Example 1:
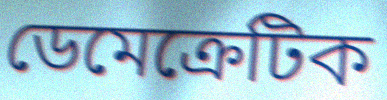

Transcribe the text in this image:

ডেমেক্রেটিক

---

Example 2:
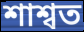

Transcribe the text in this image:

শাশ্বত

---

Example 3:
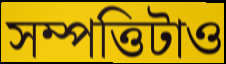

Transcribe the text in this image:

সম্পত্তিটাও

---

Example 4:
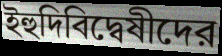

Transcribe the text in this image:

ইহুদিবিদ্বেষীদের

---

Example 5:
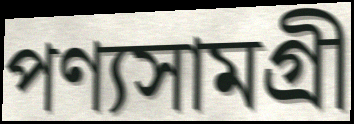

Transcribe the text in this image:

পণ্যসামগ্রী